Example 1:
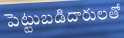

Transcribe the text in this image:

పెట్టుబడిదారులతో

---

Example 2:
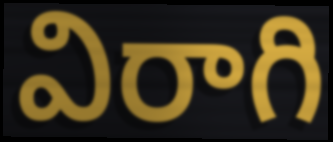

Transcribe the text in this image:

విరాగి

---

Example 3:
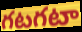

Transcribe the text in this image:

గటగటా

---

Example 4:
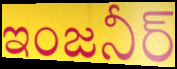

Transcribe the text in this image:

ఇంజనీర్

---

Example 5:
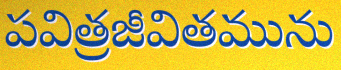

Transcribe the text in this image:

పవిత్రజీవితమును